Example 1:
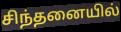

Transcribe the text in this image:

சிந்தனையில்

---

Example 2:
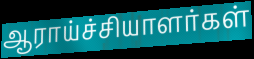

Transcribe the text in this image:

ஆராய்ச்சியாளர்கள்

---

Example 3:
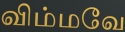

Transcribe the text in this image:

விம்மவே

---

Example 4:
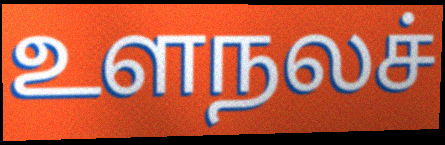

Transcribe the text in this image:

உளநலச்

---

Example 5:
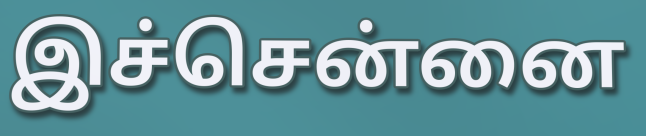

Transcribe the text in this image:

இச்சென்னை